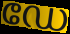
ഡേ